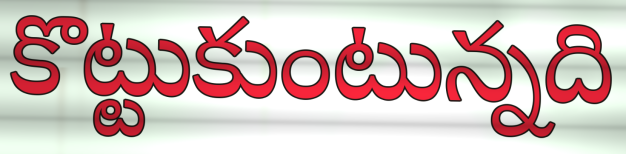
కొట్టుకుంటున్నది